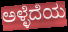
ಅಳ್ಳೆದೆಯ